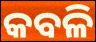
କବଳି